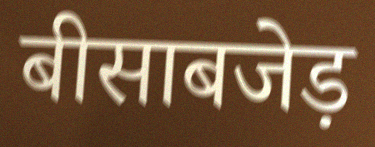
बीसाबजेड़